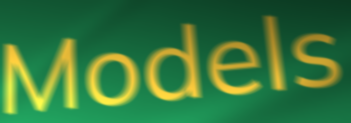
Models